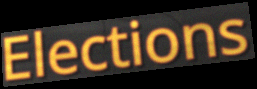
Elections